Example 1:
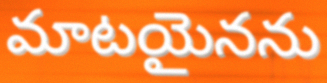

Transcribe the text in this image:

మాటయైనను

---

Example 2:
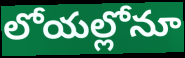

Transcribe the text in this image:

లోయల్లోనూ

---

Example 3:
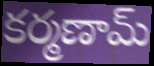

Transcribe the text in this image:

కర్మణామ్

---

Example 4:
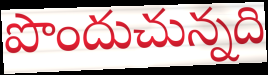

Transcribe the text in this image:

పొందుచున్నది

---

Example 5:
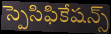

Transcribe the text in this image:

స్పెసిఫికేషన్స్